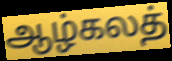
ஆழ்கலத்